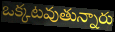
ఒక్కటవుతున్నారు